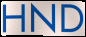
HND